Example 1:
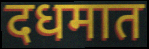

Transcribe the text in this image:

दधमात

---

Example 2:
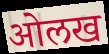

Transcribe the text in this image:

ओलख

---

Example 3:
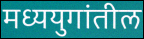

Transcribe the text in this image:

मध्ययुगांतील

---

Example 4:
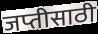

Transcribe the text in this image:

जप्तीसाठी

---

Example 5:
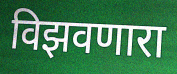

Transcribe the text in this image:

विझवणारा